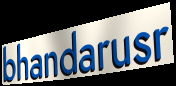
bhandarusr